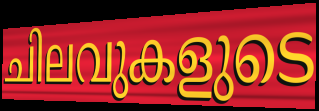
ചിലവുകളുടെ